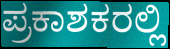
ಪ್ರಕಾಶಕರಲ್ಲಿ